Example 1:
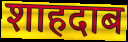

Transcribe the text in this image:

शाहदाब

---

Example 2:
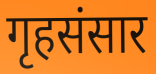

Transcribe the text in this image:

गृहसंसार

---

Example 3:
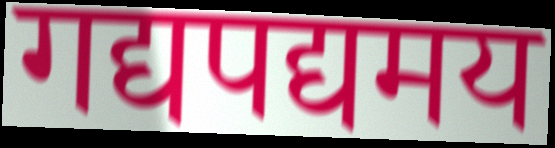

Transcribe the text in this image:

गद्यपद्यमय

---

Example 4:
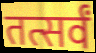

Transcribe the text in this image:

तत्सर्वं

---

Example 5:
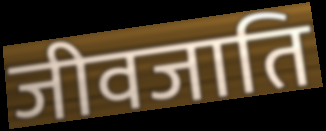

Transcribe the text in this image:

जीवजाति